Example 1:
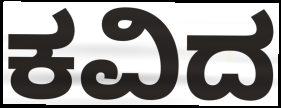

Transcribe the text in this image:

ಕವಿದ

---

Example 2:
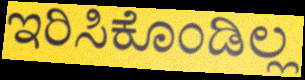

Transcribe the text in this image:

ಇರಿಸಿಕೊಂಡಿಲ್ಲ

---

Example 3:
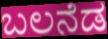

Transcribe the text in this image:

ಬಲನೆಡ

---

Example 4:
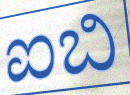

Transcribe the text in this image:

ಐಬಿ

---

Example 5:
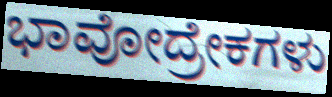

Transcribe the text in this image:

ಭಾವೋದ್ರೇಕಗಳು